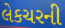
લેકચરની